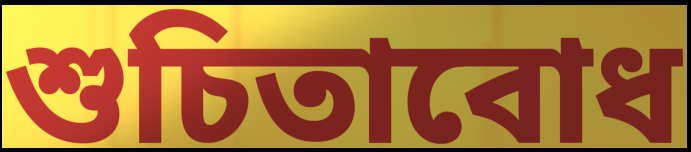
শুচিতাবোধ